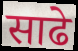
साढे